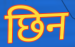
छिन